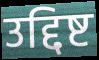
उद्दिष्ट